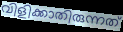
വിളിക്കാതിരുന്നത്